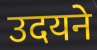
उदयने